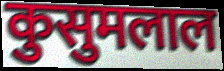
कुसुमलाल